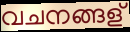
വചനങ്ങള്